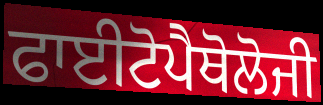
ਫਾਈਟੋਪੈਥੋਲੋਜੀ